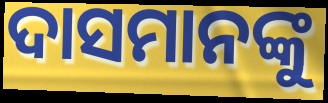
ଦାସମାନଙ୍କୁ